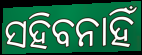
ସହିବନାହିଁ